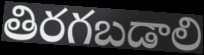
తిరగబడాలి